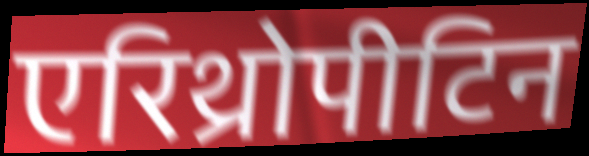
एरिथ्रोपीटिन